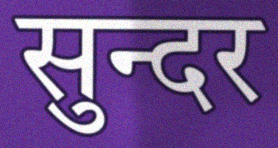
सुन्दर